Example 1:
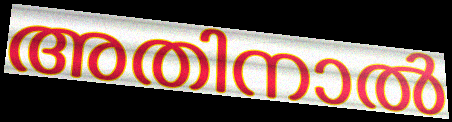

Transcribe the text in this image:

അതിനാൽ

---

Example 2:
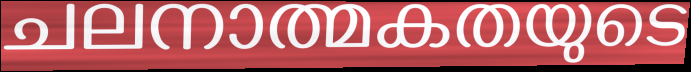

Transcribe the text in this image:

ചലനാത്മകതയുടെ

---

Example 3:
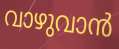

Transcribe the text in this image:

വാഴുവാൻ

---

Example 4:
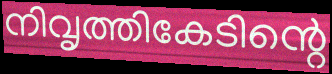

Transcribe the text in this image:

നിവൃത്തികേടിന്റെ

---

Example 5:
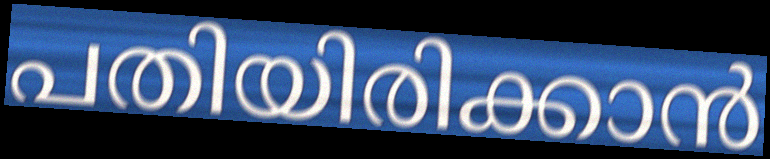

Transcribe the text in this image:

പതിയിരിക്കാൻ